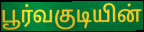
பூர்வகுடியின்